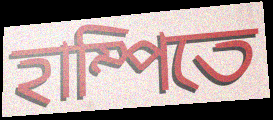
হাম্পিতে